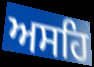
ਅਸਹਿ